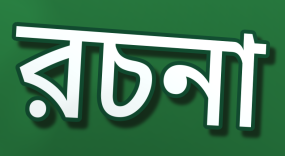
রচনা